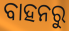
ବାହନରୁ